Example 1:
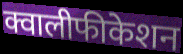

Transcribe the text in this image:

क्वालीफीकेशन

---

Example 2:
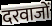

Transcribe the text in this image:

दरवाजों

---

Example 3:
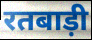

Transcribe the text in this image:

रतबाड़ी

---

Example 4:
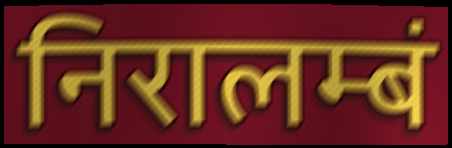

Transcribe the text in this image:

निरालम्बं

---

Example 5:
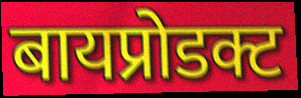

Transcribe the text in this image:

बायप्रोडक्ट